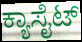
ಕ್ಯಾಸೈಟ್